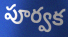
పూర్వక